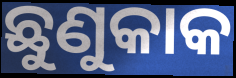
ଛୁଣୁକାକ